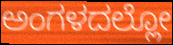
ಅಂಗಳದಲ್ಲೋ